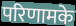
परिणामके